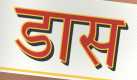
डास